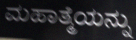
ಮಹಾತ್ಮೆಯನ್ನು